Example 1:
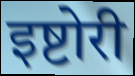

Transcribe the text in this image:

इष्टोरी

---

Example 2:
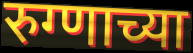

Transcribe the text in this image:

रुग्णाच्या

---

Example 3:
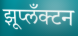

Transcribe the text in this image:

झूप्लँक्टन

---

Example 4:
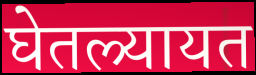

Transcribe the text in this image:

घेतल्यायत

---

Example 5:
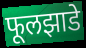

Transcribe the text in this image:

फूलझाडे